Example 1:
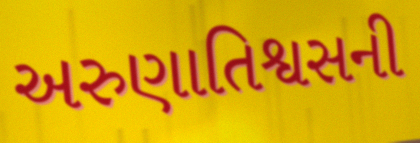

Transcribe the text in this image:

અરુણાતિશ્વસની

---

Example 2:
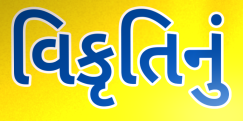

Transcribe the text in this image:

વિકૃતિનું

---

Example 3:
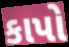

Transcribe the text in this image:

કાપો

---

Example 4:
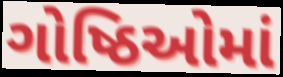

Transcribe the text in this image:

ગોષ્ઠિઓમાં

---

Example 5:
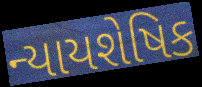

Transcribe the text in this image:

ન્યાયશેષિક